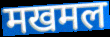
मखमल